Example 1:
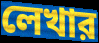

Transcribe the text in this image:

লেখার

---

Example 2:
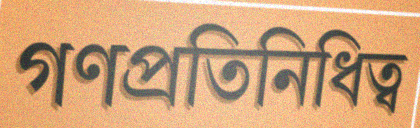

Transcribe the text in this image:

গণপ্রতিনিধিত্ব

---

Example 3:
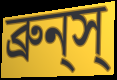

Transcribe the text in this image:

ব্রুন্‌স্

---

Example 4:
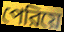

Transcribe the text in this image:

পেরিয়ে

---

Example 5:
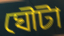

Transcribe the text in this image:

ঘৌটা